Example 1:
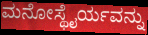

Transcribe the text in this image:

ಮನೋಸ್ಥೈರ್ಯವನ್ನು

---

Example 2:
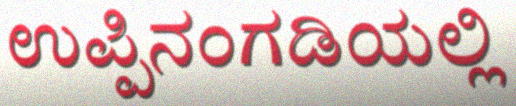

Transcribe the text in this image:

ಉಪ್ಪಿನಂಗಡಿಯಲ್ಲಿ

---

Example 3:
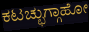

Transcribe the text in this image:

ಕಟಚ್ಛುಗ್ಗಾಹೋ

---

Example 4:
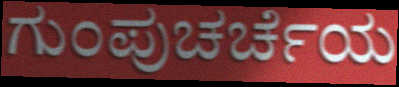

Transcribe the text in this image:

ಗುಂಪುಚರ್ಚೆಯ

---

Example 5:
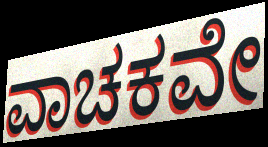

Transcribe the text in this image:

ವಾಚಕವೇ